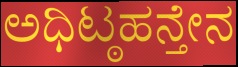
ಅಧಿಟ್ಠಹನ್ತೇನ